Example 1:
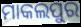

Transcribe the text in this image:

ମାକଲପୁର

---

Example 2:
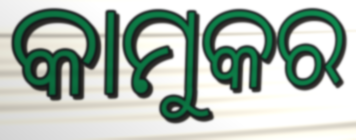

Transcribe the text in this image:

କାମୁକର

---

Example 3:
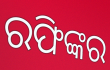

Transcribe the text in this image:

ରଫିଙ୍କର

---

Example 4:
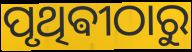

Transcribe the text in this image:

ପୃଥିଵୀଠାରୁ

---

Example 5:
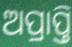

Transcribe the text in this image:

ଅପ୍ରାପ୍ତି